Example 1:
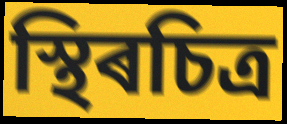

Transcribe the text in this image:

স্থিৰচিত্ৰ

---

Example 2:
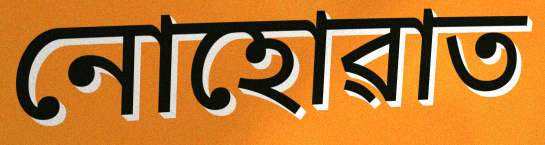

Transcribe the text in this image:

নোহোৱাত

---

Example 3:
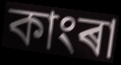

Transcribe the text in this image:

কাংৰা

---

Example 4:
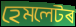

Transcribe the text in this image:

হেমলেটৰ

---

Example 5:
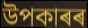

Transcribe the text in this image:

উপকাৰৰ